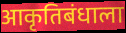
आकृतिबंधाला